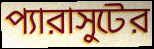
প্যারাসুটের